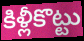
కిళ్లీకొట్టు